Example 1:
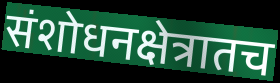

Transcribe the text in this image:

संशोधनक्षेत्रातच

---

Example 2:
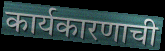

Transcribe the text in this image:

कार्यकारणाची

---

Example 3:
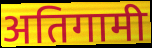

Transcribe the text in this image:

अतिगामी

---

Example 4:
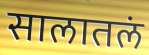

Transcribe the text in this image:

सालातलं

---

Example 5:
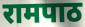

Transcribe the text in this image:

रामपाठ